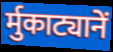
र्मुकाट्यानें